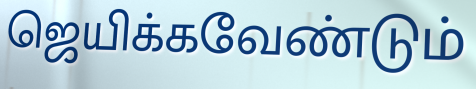
ஜெயிக்கவேண்டும்